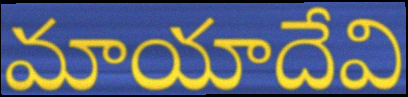
మాయాదేవి